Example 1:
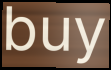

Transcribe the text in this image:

buy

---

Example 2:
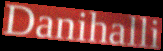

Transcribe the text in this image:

Danihalli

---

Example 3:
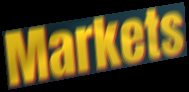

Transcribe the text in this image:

Markets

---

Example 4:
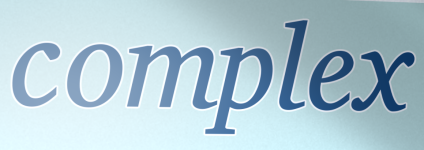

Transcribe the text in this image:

complex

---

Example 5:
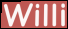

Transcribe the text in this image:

Willi